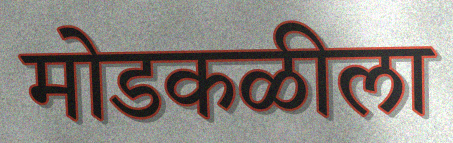
मोडकळीला